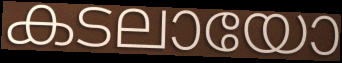
കടലായോ